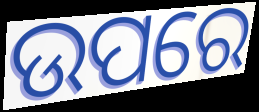
ଉପରେ